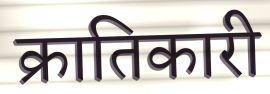
क्रातिकारी